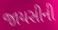
જાયસીની